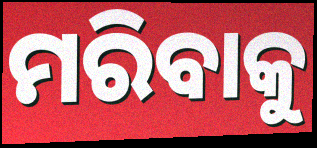
ମରିବାକୁ